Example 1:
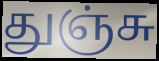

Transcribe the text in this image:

துஞ்சு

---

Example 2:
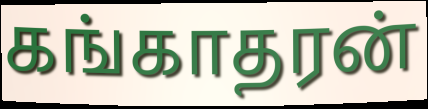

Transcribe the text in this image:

கங்காதரன்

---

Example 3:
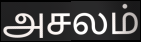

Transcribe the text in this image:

அசலம்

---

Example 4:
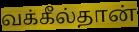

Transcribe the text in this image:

வக்கீல்தான்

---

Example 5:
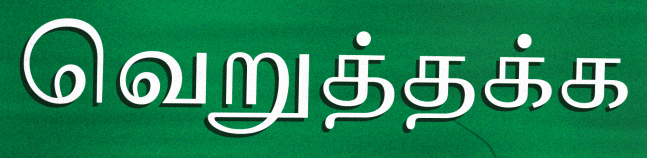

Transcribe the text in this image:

வெறுத்தக்க